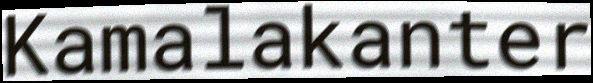
Kamalakanter